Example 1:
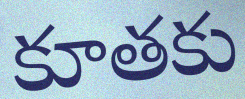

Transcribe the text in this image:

కూతకు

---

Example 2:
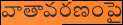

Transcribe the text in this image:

వాతావరణంపై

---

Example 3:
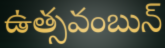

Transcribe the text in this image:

ఉత్సవంబున్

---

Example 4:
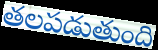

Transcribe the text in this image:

తలపడుతుంది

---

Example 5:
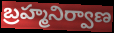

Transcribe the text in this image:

బ్రహ్మనిర్వాణ